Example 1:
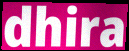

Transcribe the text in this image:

dhira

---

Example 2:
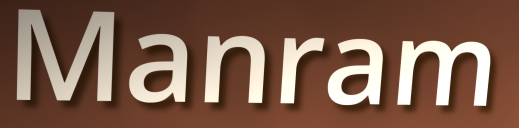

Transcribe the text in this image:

Manram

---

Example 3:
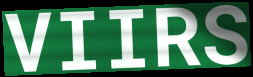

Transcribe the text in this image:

VIIRS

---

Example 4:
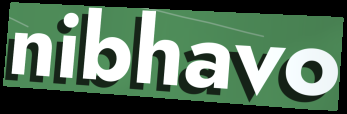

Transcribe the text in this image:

nibhavo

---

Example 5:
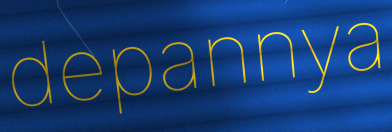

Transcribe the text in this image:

depannya